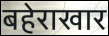
बहेराखार